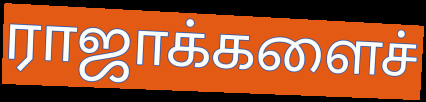
ராஜாக்களைச்